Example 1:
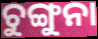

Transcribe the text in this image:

ଚୁଙ୍ଗୁନା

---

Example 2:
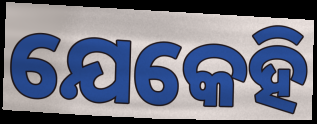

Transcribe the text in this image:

ଯେକେହି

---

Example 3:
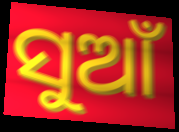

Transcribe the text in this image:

ସୁଆଁ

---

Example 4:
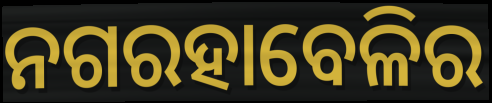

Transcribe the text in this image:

ନଗରହାବେଳିର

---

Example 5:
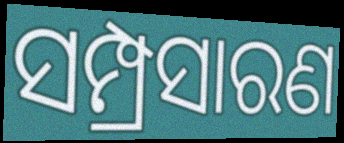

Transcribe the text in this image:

ସମ୍ପ୍ରସାରଣ